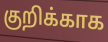
குறிக்காக